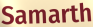
Samarth